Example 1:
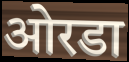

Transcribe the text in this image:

ओरडा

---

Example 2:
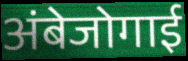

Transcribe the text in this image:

अंबेजोगाई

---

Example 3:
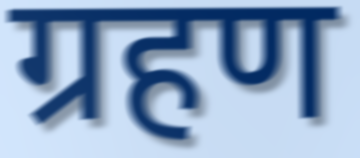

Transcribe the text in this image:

ग्रहण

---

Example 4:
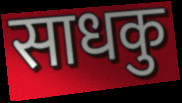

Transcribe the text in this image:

साधकु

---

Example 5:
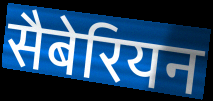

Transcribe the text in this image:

सैबेरियन